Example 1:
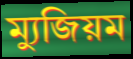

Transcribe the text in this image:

ম্যুজিয়ম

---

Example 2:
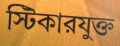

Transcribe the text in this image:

স্টিকারযুক্ত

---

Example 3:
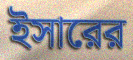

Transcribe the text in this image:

ইসারের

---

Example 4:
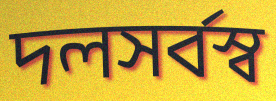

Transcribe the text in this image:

দলসর্বস্ব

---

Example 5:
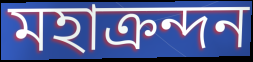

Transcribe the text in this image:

মহাক্রন্দন